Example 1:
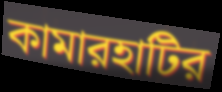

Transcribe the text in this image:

কামারহাটির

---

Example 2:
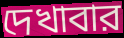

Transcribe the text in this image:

দেখাবার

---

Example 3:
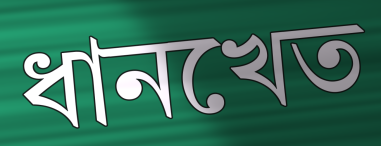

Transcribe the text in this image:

ধানখেত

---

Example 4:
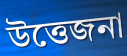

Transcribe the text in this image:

উত্তেজনা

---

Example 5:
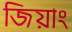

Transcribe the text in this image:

জিয়াং